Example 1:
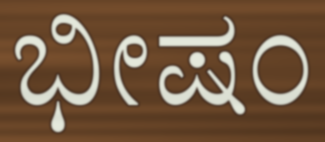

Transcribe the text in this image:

ಭೀಷಂ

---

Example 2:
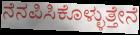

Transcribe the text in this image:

ನೆನಪಿಸಿಕೊಳ್ಳುತ್ತೇನೆ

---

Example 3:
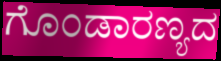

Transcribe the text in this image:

ಗೊಂಡಾರಣ್ಯದ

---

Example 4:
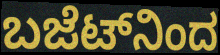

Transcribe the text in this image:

ಬಜೆಟ್‌ನಿಂದ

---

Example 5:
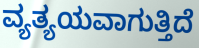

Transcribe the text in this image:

ವ್ಯತ್ಯಯವಾಗುತ್ತಿದೆ